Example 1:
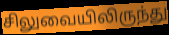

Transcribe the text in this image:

சிலுவையிலிருந்து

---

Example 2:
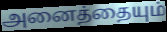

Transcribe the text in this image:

அனைத்தையும்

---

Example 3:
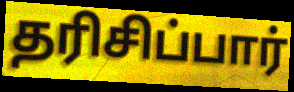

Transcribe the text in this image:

தரிசிப்பார்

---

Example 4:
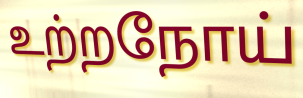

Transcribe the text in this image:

உற்றநோய்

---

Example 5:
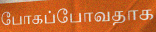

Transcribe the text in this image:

போகப்போவதாக